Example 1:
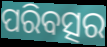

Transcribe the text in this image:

ପରିବତ୍ସର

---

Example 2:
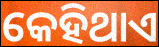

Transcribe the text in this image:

କେହିଥାଏ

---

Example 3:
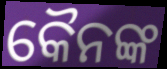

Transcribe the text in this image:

କୈନଙ୍କ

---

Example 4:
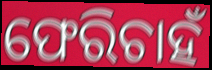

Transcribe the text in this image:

ଫେରିଚାହଁ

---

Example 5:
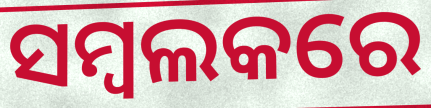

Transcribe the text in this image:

ସମ୍ବଲକରେ